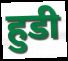
हुडी